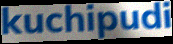
kuchipudi